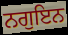
ਨਗੁਇਨ